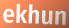
ekhun